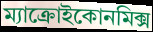
ম্যাক্রোইকোনমিক্স